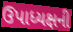
ઉપાધ્યક્ષની